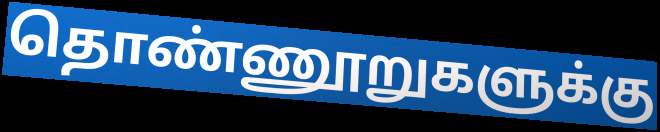
தொண்ணூறுகளுக்கு